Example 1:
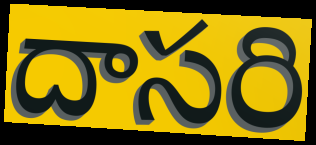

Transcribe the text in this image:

దాసరి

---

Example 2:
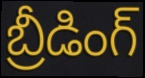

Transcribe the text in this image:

బ్రీడింగ్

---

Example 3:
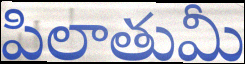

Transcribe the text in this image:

పిలాతుమీ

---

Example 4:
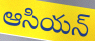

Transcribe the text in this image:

ఆసియన్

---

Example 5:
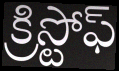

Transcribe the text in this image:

క్రిస్టోఫ్